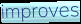
improves